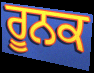
ਰੂਨਕ